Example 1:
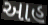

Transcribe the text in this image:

આહ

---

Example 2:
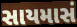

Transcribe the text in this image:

સાયમાસં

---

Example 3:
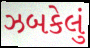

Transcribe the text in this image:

ઝબકેલું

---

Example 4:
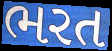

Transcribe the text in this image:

ભરત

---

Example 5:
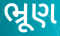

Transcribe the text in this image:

ભ્રૂણ